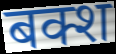
बक्श